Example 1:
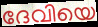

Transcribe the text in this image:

ദേവിയെ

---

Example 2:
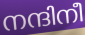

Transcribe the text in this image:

നന്ദിനീ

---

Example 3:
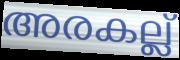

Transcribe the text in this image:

അരകല്ല്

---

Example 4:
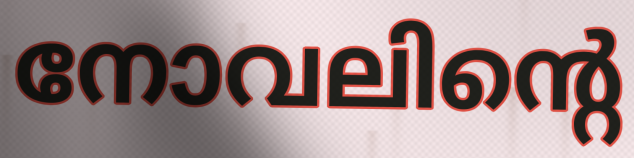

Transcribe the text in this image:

നോവലിന്റെ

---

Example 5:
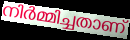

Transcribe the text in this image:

നിർമ്മിച്ചതാണ്